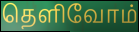
தெளிவோம்